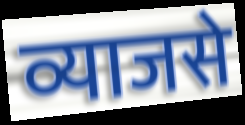
व्याजसे